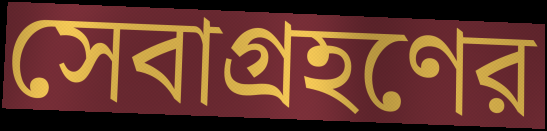
সেবাগ্রহণের